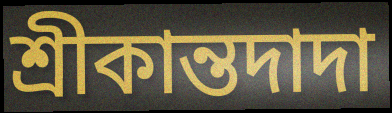
শ্রীকান্তদাদা